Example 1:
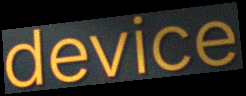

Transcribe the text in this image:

device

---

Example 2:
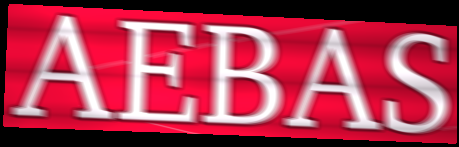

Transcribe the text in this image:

AEBAS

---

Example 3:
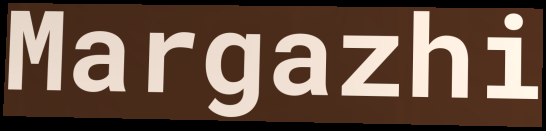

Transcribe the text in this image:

Margazhi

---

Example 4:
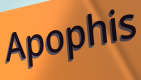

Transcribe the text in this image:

Apophis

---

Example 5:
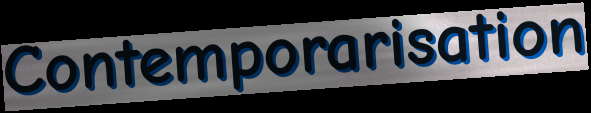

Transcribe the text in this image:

Contemporarisation